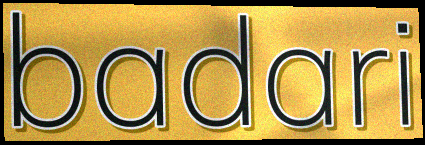
badari